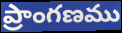
ప్రాంగణము